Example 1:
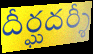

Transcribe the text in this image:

దీర్ఘదర్శీ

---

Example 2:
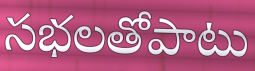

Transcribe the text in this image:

సభలతోపాటు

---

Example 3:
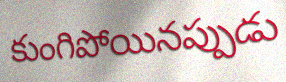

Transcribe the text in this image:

కుంగిపోయినప్పుడు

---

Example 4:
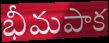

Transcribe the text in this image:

భీమపాక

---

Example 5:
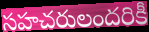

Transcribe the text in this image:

సహచరులందరికీ